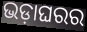
ଭଡ଼ାଘରର